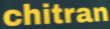
chitran